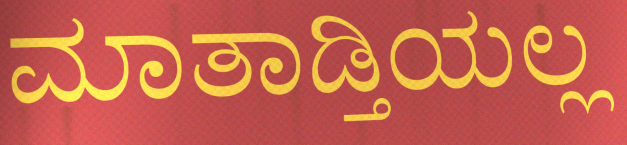
ಮಾತಾಡ್ತಿಯಲ್ಲ